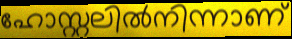
ഹോസ്റ്റലിൽനിന്നാണ്